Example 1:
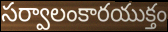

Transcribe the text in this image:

సర్వాలంకారయుక్తం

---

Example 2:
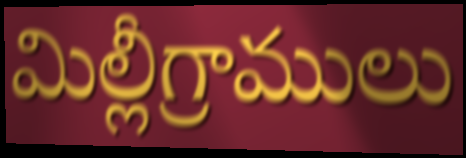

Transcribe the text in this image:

మిల్లీగ్రాములు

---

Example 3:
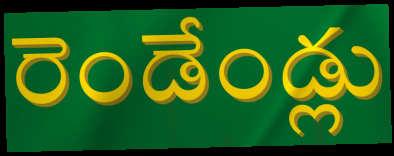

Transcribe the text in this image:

రెండేండ్లు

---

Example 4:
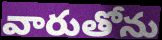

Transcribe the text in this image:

వారుతోను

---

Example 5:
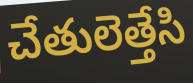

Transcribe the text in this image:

చేతులెత్తేసి